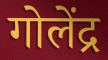
गोलेंद्र